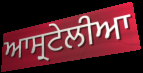
ਆਸ੍ਰਟੇਲੀਆ